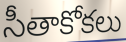
సీతాకోకలు